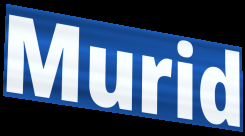
Murid